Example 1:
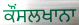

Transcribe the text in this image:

ਕੌਂਸਲਖਾਨਾ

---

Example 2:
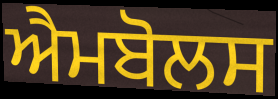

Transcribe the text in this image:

ਐਮਬੋਲਸ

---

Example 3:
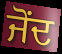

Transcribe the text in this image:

ਜੋਂਦ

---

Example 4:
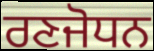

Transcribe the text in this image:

ਰਣਜੋਧਨ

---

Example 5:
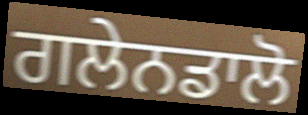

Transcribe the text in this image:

ਗਲੇਨਡਾਲੋ